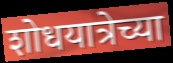
शोधयात्रेच्या